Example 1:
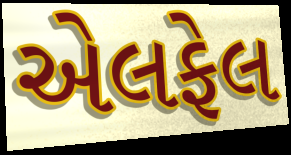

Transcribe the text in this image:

એલફેલ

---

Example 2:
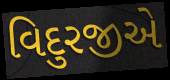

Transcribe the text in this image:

વિદુરજીએ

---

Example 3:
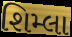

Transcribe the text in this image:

શિમ્લા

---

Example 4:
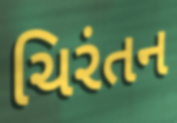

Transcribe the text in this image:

ચિરંતન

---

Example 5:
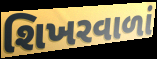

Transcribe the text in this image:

શિખરવાળાં